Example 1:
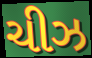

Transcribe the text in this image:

ચીઝ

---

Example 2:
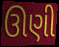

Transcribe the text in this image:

ઊણી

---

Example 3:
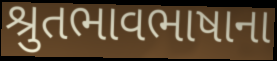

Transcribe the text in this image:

શ્રુતભાવભાષાના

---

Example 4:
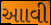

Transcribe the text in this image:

આાવી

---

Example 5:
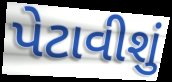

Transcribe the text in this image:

પેટાવીશું